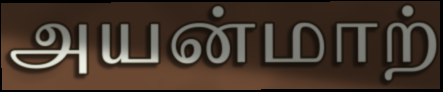
அயன்மாற்